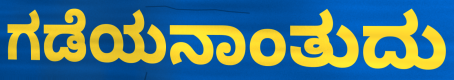
ಗಡೆಯನಾಂತುದು